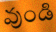
వుండి